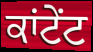
ਕਾਂਟੇਂਟ